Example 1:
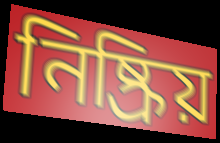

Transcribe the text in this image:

নিষ্ক্রিয়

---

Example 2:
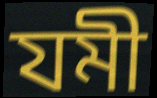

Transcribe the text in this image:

যমী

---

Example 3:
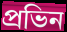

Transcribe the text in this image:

প্রভিন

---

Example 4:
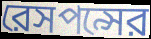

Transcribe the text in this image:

রেসপন্সের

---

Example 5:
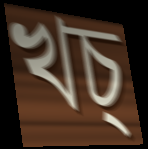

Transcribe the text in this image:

খচ্